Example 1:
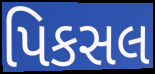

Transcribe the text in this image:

પિકસલ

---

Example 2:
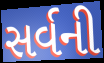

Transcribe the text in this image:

સર્વની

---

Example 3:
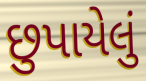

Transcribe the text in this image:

છુપાયેલું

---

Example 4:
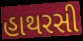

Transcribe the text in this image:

હાથરસી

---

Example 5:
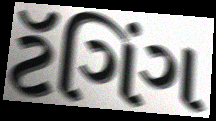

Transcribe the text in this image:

ટૅગિંગ